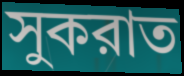
সুকরাত